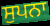
ਸੁਪਨਾ